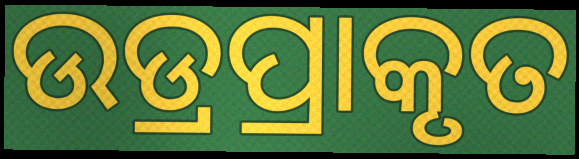
ଉଡ୍ରପ୍ରାକୃତ